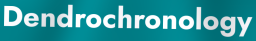
Dendrochronology